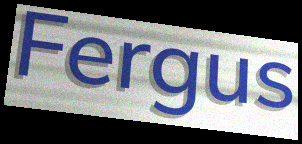
Fergus